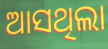
ଆସଥିଲା